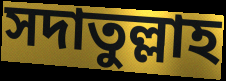
সদাতুল্লাহ